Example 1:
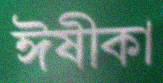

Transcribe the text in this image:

ঈষীকা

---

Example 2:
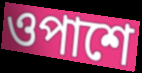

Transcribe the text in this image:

ওপাশে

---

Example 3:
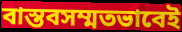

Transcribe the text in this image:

বাস্তবসম্মতভাবেই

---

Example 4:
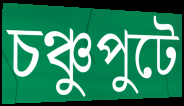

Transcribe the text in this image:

চঞ্চুপুটে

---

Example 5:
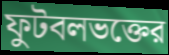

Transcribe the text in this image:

ফুটবলভক্তের